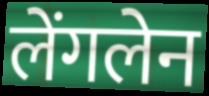
लेंगलेन